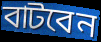
বাটবেন